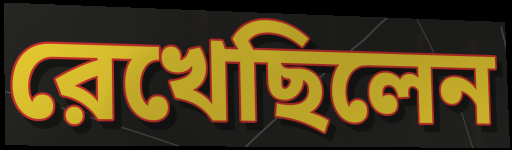
রেখেছিলেন